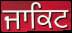
ਜਾਕਿਟ